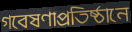
গবেষণাপ্রতিষ্ঠানে